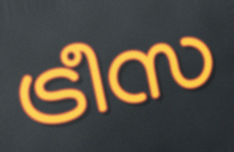
ട്രീസ